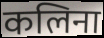
कलिना